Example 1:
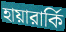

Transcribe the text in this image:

হায়ারার্কি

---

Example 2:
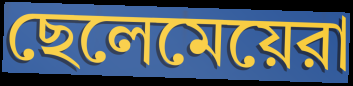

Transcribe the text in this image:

ছেলেমেয়েরা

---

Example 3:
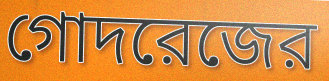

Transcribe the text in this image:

গোদরেজের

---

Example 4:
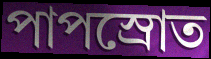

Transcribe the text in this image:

পাপস্রোত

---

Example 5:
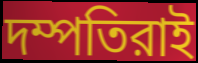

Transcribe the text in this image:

দম্পতিরাই